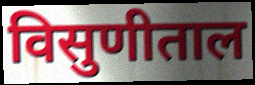
विसुणीताल